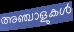
അഞ്ചാളുകൾ